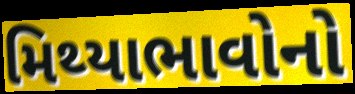
મિથ્યાભાવોનો